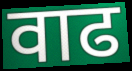
वाढ